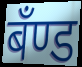
बँण्ड